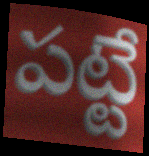
పట్టే